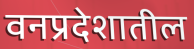
वनप्रदेशातील